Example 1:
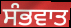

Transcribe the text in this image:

ਸੰਭਵਾਤ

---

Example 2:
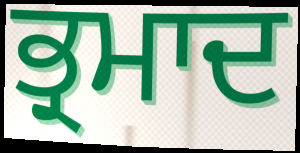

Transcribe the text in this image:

ਭ੍ਰਮਾਦ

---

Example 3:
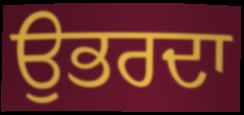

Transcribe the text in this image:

ਉਭਰਦਾ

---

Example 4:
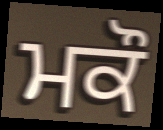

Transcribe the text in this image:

ਮਕੌ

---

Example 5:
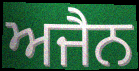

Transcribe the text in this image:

ਅਜੈਨ